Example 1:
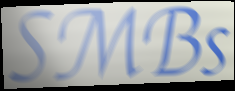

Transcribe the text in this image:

SMBs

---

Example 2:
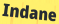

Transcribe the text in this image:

Indane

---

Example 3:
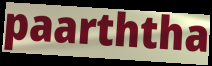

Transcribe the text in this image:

paarththa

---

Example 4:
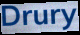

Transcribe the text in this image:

Drury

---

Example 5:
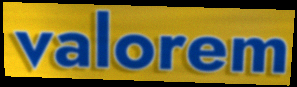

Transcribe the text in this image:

valorem